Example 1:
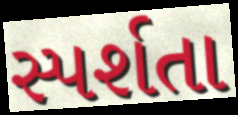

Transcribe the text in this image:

સ્પર્શતા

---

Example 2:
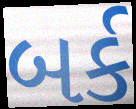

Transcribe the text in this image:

બર્ક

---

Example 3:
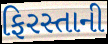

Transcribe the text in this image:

ફિરસ્તાની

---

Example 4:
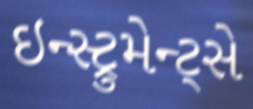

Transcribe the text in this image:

ઇન્સ્ટ્રુમેન્ટ્સે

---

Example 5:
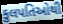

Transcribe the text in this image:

કુલપતિઓથી